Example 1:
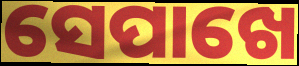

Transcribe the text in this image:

ସେପାଖେ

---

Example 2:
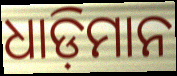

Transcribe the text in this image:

ଧାଡ଼ିମାନ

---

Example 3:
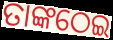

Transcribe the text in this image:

ତାଙ୍କଠେଇ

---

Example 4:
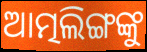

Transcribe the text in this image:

ଆତ୍ମଲିଙ୍ଗଙ୍କୁ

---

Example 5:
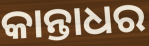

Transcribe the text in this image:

କାନ୍ତାଧର